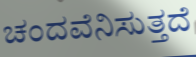
ಚಂದವೆನಿಸುತ್ತದೆ